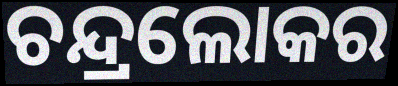
ଚନ୍ଦ୍ରଲୋକର